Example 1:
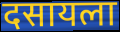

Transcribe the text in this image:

दसायला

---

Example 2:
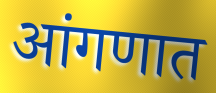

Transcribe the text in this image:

आंगणात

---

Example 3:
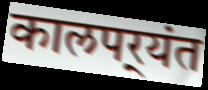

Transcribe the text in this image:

कालपर्यंत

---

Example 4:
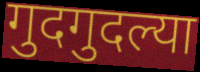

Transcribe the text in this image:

गुदगुदल्या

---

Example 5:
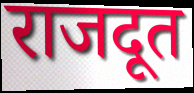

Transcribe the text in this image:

राजदूत